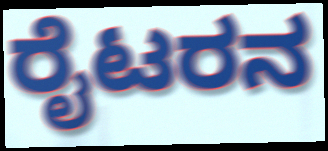
ರೈಟರನ